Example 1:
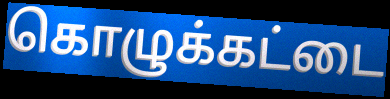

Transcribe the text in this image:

கொழுக்கட்டை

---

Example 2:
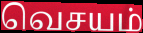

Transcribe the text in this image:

வெசயம்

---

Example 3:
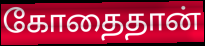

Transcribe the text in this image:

கோதைதான்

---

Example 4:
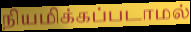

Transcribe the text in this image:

நியமிக்கப்படாமல்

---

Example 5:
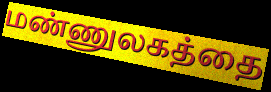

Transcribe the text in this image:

மண்ணுலகத்தை